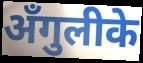
अँगुलीके